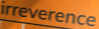
irreverence